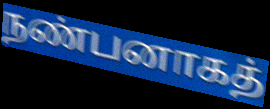
நண்பனாகத்